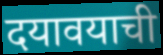
दयावयाची